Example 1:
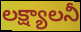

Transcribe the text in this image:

లక్ష్యాలనీ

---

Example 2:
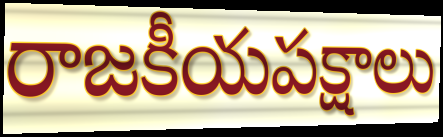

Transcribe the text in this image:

రాజకీయపక్షాలు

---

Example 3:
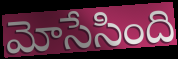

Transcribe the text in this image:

మోసేసింది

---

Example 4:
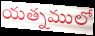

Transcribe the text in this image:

యత్నములో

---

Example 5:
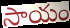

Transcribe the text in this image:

సాయం